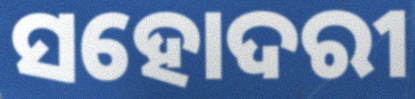
ସହୋଦରୀ